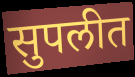
सुपलीत